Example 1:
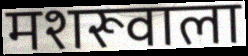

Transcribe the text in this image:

मशरूवाला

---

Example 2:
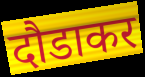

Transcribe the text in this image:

दौडाकर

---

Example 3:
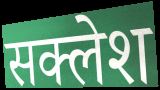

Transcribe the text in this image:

सक्लेश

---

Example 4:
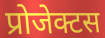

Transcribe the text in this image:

प्रोजेक्टस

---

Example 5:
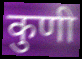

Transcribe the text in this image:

कुणी